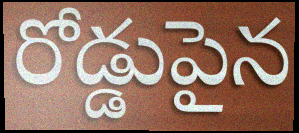
రోడ్డుపైన